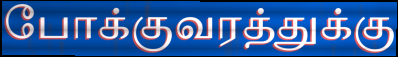
போக்குவரத்துக்கு